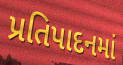
પ્રતિપાદનમાં